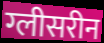
ग्लीसरीन